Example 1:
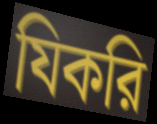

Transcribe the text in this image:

যিকরি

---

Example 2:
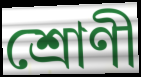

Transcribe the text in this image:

শ্রোণী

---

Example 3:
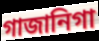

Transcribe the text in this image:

গাজানিগা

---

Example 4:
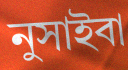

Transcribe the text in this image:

নুসাইবা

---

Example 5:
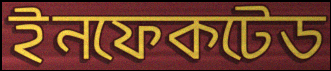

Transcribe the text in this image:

ইনফেকটেড